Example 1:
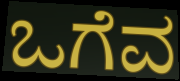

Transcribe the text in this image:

ಒಗೆವ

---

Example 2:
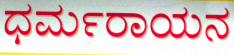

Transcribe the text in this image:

ಧರ್ಮರಾಯನ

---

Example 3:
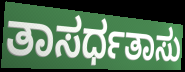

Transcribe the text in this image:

ತಾಸರ್ಧತಾಸು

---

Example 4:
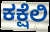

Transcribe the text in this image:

ಕಕ್ಷೆಲಿ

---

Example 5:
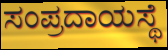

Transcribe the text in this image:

ಸಂಪ್ರದಾಯಸ್ಥೆ